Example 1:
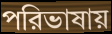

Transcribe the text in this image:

পরিভাষায়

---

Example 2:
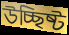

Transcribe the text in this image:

উচ্ছিষ্ট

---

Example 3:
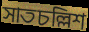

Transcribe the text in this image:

সাতচল্লিশ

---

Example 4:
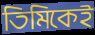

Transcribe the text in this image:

তিমিকেই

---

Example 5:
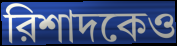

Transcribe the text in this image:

রিশাদকেও